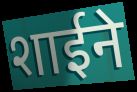
शाईने